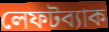
লেফটব্যাক